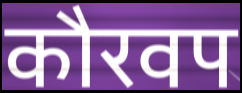
कौरवप